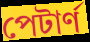
পেটাৰ্ণ